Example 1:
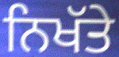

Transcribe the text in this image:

ਨਿਖੱਤੇ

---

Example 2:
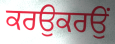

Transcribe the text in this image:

ਕਰਉਕਰਉਂ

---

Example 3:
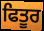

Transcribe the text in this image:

ਫਿਤੂਰ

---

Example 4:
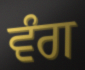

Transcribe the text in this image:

ਵੰਗ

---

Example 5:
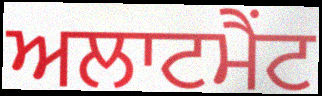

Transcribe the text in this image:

ਅਲਾਟਮੈਂਟ